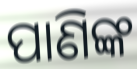
ପାଣିଙ୍କ